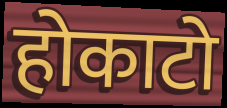
होकाटो